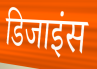
डिजाइंस